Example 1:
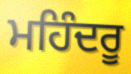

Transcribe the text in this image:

ਮਹਿੰਦਰੂ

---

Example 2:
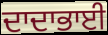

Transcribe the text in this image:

ਦਾਦਾਭਾਈ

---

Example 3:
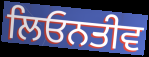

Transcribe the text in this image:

ਲਿਓਨਤੀਵ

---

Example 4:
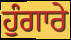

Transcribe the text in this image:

ਹੁੰਗਾਰੇ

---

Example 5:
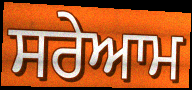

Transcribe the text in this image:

ਸਰੇਆਮ